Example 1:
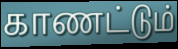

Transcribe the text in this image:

காணட்டும்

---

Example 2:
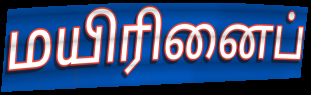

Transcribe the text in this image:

மயிரினைப்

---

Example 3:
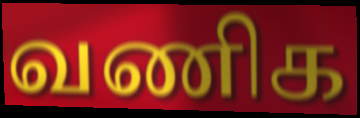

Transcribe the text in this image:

வணிக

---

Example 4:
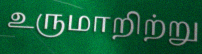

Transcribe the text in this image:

உருமாறிற்று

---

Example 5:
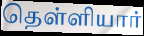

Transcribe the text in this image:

தெள்ளியார்